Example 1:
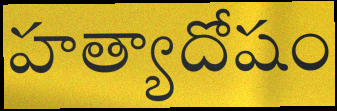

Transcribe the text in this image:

హత్యాదోషం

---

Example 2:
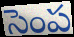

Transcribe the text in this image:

సెంప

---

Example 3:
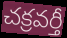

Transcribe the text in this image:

చక్రవర్తీ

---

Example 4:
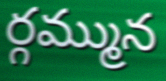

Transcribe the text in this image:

ర్గమ్మున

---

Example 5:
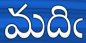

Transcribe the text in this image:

మదిఁ